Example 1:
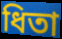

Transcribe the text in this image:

ধিতা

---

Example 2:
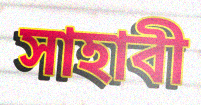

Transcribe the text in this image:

সাহাবী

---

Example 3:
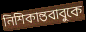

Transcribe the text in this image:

নিশিকান্তবাবুকে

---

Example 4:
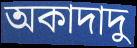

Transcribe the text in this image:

অকাদাদু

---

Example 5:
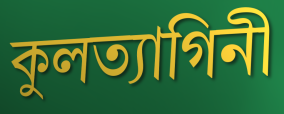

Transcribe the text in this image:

কুলত্যাগিনী